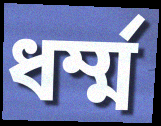
ধর্ম্ম